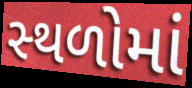
સ્‍થળોમાં